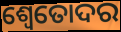
ଶ୍ୱେତୋଦର